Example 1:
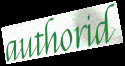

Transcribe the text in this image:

authorid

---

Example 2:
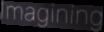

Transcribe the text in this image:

Imagining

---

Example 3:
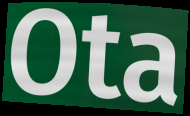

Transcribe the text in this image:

Ota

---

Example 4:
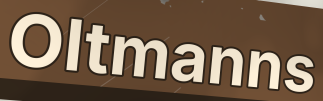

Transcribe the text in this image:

Oltmanns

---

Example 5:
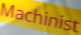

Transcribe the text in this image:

Machinist